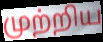
முற்றிய